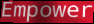
Empower